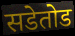
सडेतोड